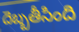
దెబ్బతీసింది